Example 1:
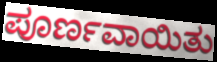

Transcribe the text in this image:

ಪೂರ್ಣವಾಯಿತು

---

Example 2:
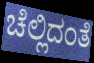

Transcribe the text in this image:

ಚೆಲ್ಲಿದಂತೆ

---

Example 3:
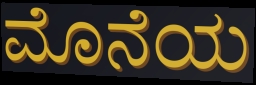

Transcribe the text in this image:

ಮೊನೆಯ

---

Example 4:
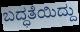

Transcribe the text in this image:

ಬದ್ಧತೆಯಿದ್ದು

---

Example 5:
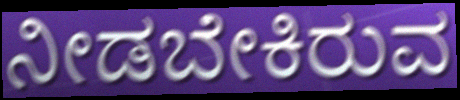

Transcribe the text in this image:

ನೀಡಬೇಕಿರುವ